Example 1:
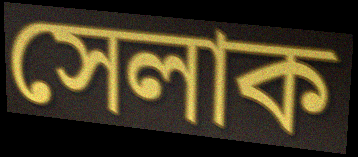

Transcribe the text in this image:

সেলাক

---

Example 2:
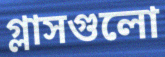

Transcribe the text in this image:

গ্লাসগুলো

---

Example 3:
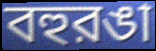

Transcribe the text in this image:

বহুরঙা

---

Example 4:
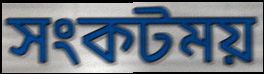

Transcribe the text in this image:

সংকটময়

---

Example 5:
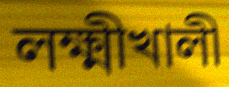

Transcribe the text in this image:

লক্ষ্মীখালী